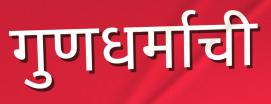
गुणधर्माची